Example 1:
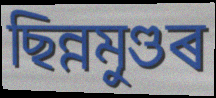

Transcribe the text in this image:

ছিন্নমুণ্ডৰ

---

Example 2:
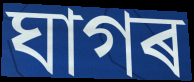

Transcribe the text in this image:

ঘাগৰ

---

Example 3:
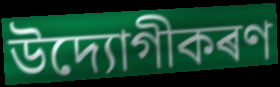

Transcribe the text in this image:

উদ্যোগীকৰণ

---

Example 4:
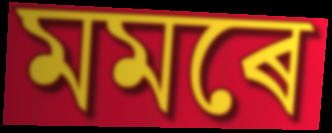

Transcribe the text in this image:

মমৰে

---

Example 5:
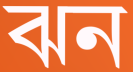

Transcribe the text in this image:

ঝন